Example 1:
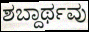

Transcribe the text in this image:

ಶಬ್ದಾರ್ಥವು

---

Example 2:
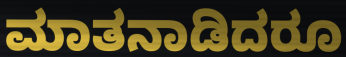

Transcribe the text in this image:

ಮಾತನಾಡಿದರೂ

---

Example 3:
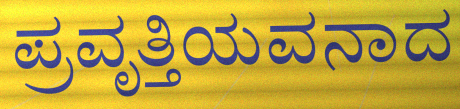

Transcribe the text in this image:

ಪ್ರವೃತ್ತಿಯವನಾದ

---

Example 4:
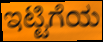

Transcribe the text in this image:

ಇಟ್ಟಿಗೆಯ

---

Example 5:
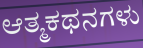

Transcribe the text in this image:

ಆತ್ಮಕಥನಗಳು